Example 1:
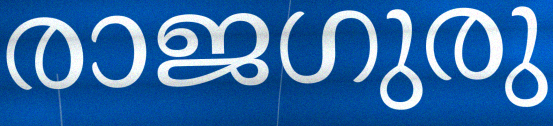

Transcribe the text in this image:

രാജഗുരു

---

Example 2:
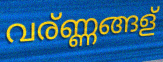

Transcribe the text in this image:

വര്ണ്ണങ്ങള്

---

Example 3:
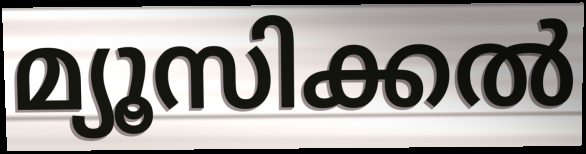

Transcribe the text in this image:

മ്യൂസിക്കൽ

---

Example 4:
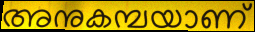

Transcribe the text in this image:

അനുകമ്പയാണ്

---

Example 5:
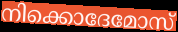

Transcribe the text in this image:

നിക്കൊദേമോസ്